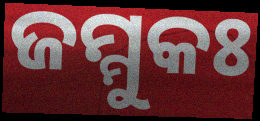
ଜମ୍ମୁକଃ